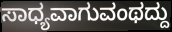
ಸಾಧ್ಯವಾಗುವಂಥದ್ದು